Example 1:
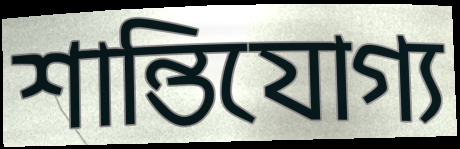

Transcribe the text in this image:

শান্তিযোগ্য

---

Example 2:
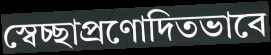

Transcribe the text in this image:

স্বেচ্ছাপ্রণোদিতভাবে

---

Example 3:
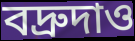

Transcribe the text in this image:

বদ্রুদাও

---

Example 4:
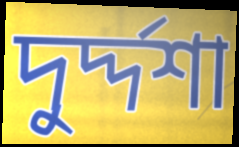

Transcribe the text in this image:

দুর্দ্দশা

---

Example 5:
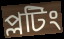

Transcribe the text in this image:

প্লটিং